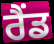
ਰੈਂਡ